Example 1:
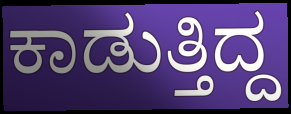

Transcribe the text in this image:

ಕಾಡುತ್ತಿದ್ದ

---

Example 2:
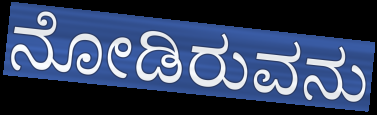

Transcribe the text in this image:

ನೋಡಿರುವನು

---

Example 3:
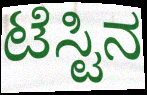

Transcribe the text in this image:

ಟೆಸ್ಟಿನ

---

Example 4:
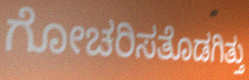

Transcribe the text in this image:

ಗೋಚರಿಸತೊಡಗಿತ್ತು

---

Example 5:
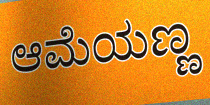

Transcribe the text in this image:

ಆಮೆಯಣ್ಣ